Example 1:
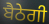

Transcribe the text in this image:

ਬੈਠੇਗੀ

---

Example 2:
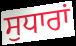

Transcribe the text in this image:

ਸੁਧਾਰਾਂ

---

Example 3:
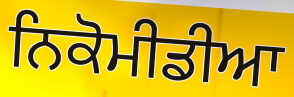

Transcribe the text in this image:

ਨਿਕੋਮੀਡੀਆ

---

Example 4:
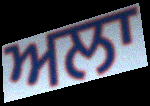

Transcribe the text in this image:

ਅਲਾ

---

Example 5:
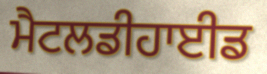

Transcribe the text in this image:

ਮੈਟਲਡੀਹਾਈਡ